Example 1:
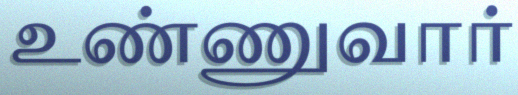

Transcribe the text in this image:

உண்ணுவார்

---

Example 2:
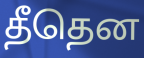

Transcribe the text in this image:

தீதென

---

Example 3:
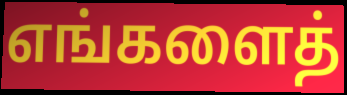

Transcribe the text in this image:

எங்களைத்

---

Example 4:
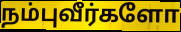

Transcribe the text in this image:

நம்புவீர்களோ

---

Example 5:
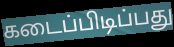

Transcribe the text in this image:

கடைப்பிடிப்பது